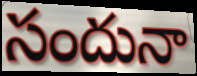
సందునా